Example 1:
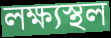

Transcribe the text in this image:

লক্ষ্যস্থল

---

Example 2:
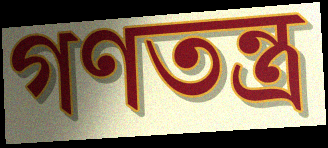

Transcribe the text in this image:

গণতন্ত্র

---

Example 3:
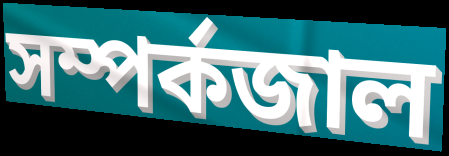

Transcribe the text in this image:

সম্পর্কজাল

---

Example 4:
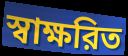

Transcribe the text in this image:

স্বাক্ষরিত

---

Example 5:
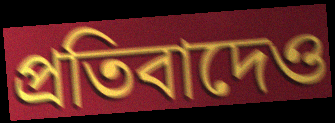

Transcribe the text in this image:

প্রতিবাদেও